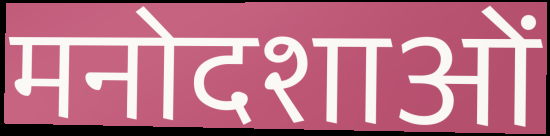
मनोदशाओं